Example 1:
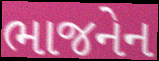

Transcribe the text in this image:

ભાજનેન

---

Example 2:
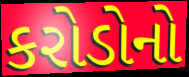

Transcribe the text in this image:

કરોડોનો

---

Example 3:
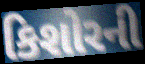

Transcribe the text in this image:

કિશોરની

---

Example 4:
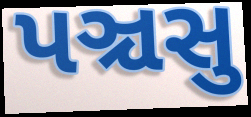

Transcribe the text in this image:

પઞ્ચસુ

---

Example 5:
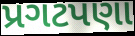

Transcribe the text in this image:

પ્રગટપણા